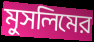
মুসলিমের